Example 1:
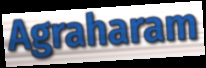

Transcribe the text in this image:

Agraharam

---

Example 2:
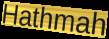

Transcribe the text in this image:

Hathmah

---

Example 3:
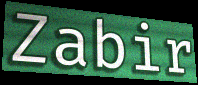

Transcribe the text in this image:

Zabir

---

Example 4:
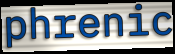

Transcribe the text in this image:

phrenic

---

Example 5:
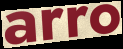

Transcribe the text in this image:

arro